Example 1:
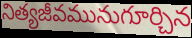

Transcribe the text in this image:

నిత్యజీవమునుగూర్చిన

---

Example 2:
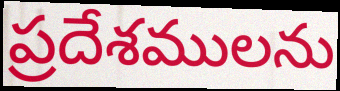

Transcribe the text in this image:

ప్రదేశములను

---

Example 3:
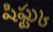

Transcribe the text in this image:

షిఫ్ట్కు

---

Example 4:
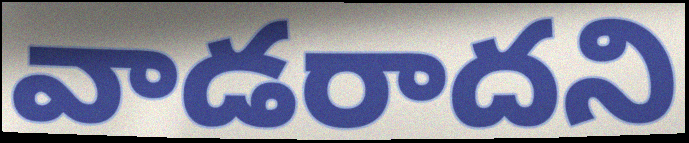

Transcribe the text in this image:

వాడరాదని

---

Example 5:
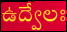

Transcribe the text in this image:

ఉద్వేలః